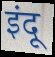
इंदू